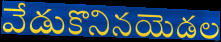
వేడుకొనినయెడల